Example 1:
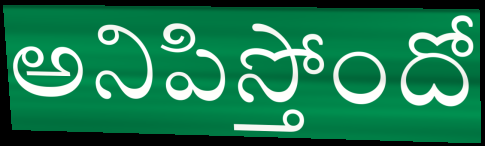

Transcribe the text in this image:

అనిపిస్తోందో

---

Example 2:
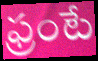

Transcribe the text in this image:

ఫ్రంటే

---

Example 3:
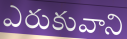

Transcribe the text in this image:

ఎరుకువాని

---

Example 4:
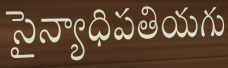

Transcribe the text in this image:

సైన్యాధిపతియగు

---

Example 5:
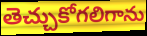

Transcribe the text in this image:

తెచ్చుకోగలిగాను